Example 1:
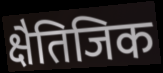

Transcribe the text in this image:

क्षैतिजिक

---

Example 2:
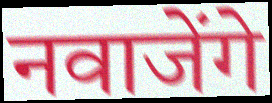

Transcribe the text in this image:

नवाजेंगे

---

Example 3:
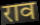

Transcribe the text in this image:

राव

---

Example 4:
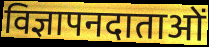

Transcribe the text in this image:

विज्ञापनदाताओं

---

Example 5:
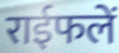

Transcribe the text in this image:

राईफलें